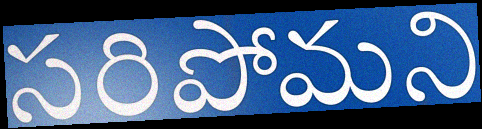
సరిపోమని